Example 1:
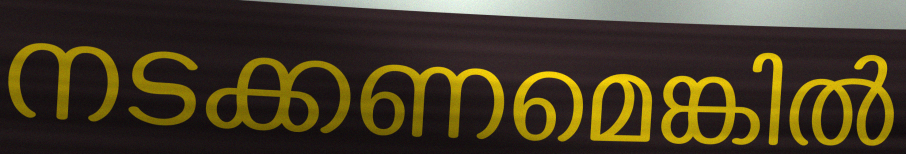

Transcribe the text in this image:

നടക്കണമെങ്കിൽ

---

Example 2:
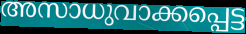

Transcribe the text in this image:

അസാധുവാക്കപ്പെട്ട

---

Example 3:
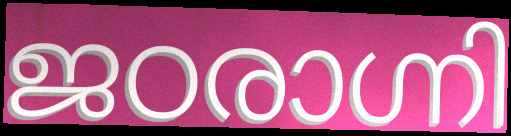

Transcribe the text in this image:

ജഠരാഗ്നി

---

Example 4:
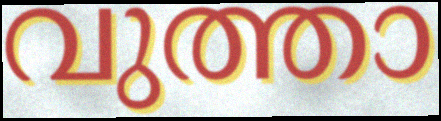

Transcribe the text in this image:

വുത്താ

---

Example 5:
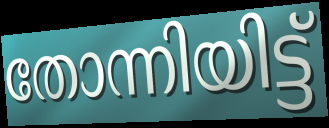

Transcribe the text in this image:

തോന്നിയിട്ട്